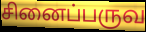
சினைப்பருவ